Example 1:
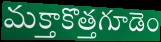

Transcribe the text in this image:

మక్తాకొత్తగూడెం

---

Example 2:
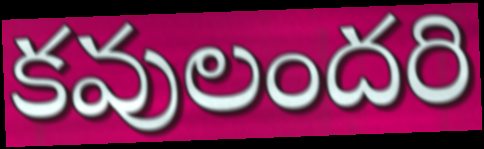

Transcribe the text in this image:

కవులందరి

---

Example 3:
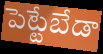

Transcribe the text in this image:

పెట్టేబేడా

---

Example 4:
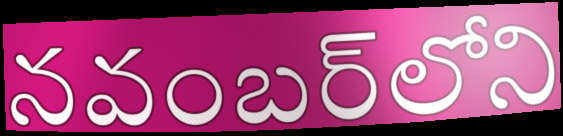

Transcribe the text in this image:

నవంబర్‌లోని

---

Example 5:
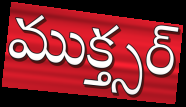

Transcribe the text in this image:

ముక్త్సర్